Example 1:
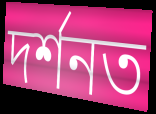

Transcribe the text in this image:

দৰ্শনত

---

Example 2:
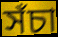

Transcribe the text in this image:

সঁচা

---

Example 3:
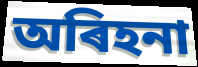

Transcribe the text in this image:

অৰিহনা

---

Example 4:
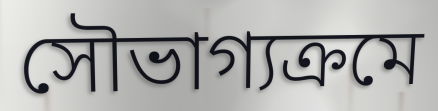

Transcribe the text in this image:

সৌভাগ্যক্ৰমে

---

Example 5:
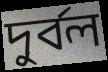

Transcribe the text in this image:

দুৰ্বল